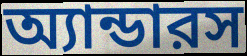
অ্যান্ডারস